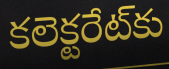
కలెక్టరేట్‌కు